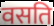
वसति